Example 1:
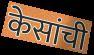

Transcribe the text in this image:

केसांची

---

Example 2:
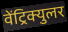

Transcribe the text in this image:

वेंट्रिक्युलर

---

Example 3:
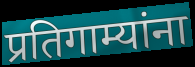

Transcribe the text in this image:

प्रतिगाम्यांना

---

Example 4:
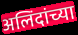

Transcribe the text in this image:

अलिंदांच्या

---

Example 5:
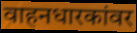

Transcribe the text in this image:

वाहनधारकांवर